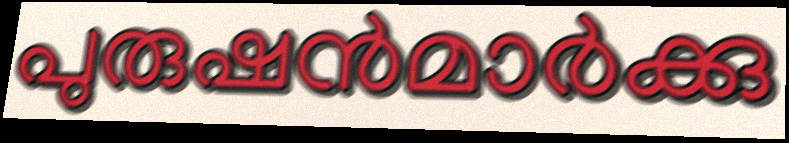
പുരുഷൻമാർക്കു